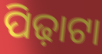
ପିଢ଼ାଟା